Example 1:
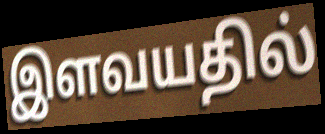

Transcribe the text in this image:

இளவயதில்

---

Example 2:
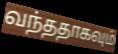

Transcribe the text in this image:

வந்ததாகவும்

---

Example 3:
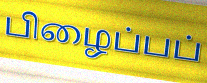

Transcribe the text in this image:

பிழைப்பப்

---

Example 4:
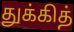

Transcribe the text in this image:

துக்கித்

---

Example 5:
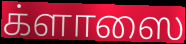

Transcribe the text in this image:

க்ளாஸை